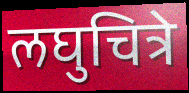
लघुचित्रे